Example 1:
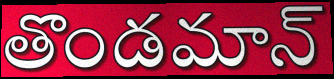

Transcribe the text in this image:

తొండమాన్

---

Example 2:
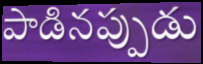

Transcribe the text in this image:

పాడినప్పుడు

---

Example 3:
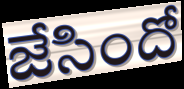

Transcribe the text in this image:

జేసిందో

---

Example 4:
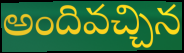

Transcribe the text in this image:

అందివచ్చిన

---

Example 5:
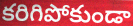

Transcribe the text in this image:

కరిగిపోకుండా